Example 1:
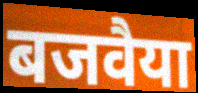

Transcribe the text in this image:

बजवैया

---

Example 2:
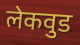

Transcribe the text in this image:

लेकवुड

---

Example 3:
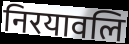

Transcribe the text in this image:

निरयावलि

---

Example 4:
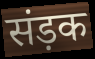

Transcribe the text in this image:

संड़क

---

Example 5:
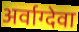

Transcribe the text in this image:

अर्वाग्देवा